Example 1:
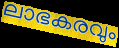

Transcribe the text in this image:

ലാഭകരവും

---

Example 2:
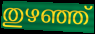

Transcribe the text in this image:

തുഴഞ്ഞ്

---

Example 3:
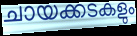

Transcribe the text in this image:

ചായക്കടകളും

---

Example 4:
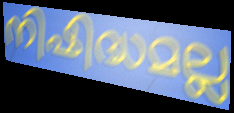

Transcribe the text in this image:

നിഷിദ്ധമല്ല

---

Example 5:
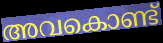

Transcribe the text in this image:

അവകൊണ്ട്